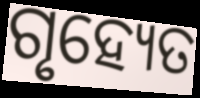
ଗୃହ୍ଯେତ